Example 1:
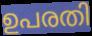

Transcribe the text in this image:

ഉപരതി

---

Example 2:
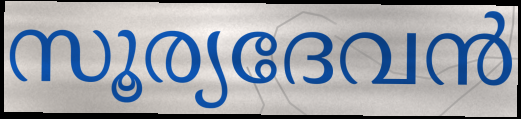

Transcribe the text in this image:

സൂര്യദേവൻ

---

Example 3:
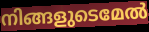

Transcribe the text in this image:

നിങ്ങളുടെമേൽ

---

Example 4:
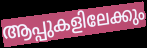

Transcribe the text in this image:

ആപ്പുകളിലേക്കും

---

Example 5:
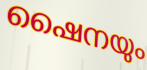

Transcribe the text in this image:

ഷൈനയും